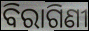
ବିରାଗିଣୀ